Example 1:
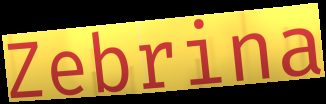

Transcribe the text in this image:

Zebrina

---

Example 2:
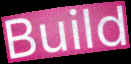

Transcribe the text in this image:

Build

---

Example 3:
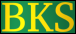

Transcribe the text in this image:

BKS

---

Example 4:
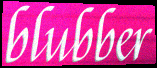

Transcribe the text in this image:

blubber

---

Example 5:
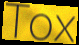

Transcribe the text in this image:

Tox